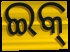
ଇକ୍